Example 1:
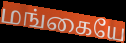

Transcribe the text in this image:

மங்கையே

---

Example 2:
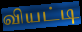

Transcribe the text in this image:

வியட்டி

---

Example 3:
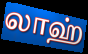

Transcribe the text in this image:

லாஹ்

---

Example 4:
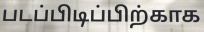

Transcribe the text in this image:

படப்பிடிப்பிற்காக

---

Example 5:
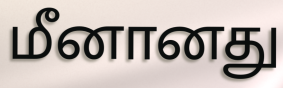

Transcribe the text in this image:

மீனானது